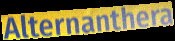
Alternanthera